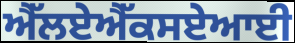
ਐੱਲਏਐੱਕਸਏਆਈ